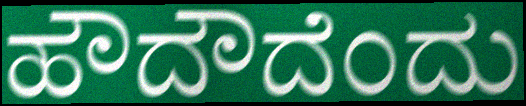
ಹೌದೌದೆಂದು